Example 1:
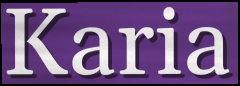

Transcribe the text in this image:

Karia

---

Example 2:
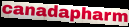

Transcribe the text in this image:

canadapharm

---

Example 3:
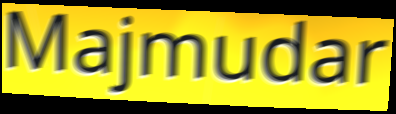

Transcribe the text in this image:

Majmudar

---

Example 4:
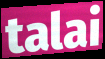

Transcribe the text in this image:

talai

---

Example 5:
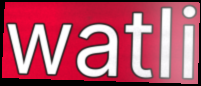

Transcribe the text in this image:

watli